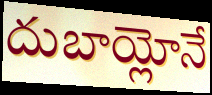
దుబాయ్లోనే